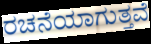
ರಚನೆಯಾಗುತ್ತವೆ